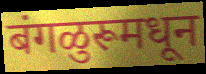
बंगळुरूमधून